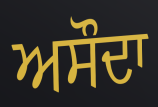
ਅਸੌਦਾ